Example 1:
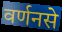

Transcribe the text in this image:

वर्णनसे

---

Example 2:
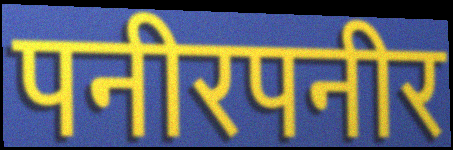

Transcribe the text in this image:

पनीरपनीर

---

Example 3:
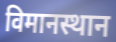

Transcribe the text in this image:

विमानस्थान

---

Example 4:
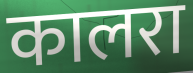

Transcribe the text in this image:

कालरा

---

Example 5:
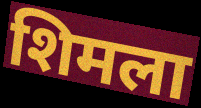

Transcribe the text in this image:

शिमला